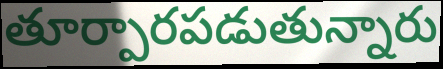
తూర్పారపడుతున్నారు